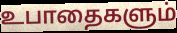
உபாதைகளும்